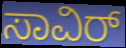
ಸಾವಿರ್